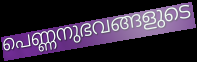
പെണ്ണനുഭവങ്ങളുടെ